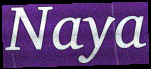
Naya